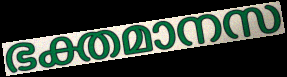
ഭക്തമാനസ